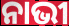
ନାଭୀ